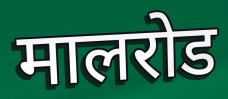
मालरोड